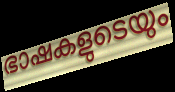
ഭാഷകളുടെയും